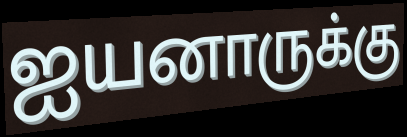
ஐயனாருக்கு